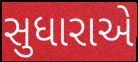
સુધારાએ